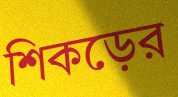
শিকড়ের